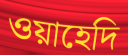
ওয়াহেদি